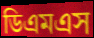
ডিএমএস